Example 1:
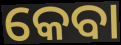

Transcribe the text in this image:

କେବା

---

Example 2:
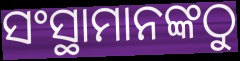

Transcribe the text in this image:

ସଂସ୍ଥାମାନଙ୍କଠୁ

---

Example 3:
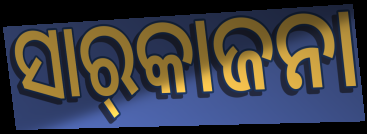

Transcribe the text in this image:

ସାର୍‌କାଜନା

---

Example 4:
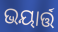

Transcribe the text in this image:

ଭୟାର୍ତ୍ତ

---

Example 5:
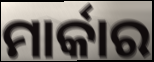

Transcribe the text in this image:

ମାର୍କାର